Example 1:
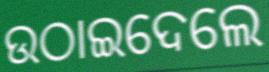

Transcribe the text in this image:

ଉଠାଇଦେଲେ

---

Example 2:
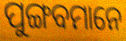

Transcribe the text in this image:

ପୁଙ୍ଗବମାନେ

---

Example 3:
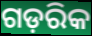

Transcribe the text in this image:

ଗଡ଼ରିକ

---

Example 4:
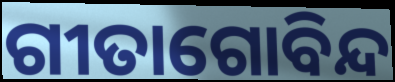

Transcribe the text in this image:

ଗୀତାଗୋବିନ୍ଦ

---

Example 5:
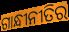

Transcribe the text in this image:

ଗାନ୍ଧୀନୀତିର